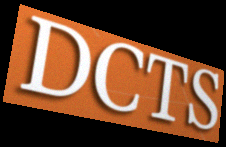
DCTS